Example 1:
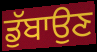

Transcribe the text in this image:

ਡੁੱਬਾਉਣ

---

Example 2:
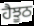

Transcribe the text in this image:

ਹੈਝੂਠ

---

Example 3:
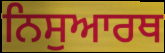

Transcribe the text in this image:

ਨਿਸੁਆਰਥ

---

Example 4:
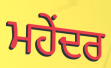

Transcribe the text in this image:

ਮਹੇਂਦਰ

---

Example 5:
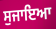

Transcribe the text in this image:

ਸੁਜਾਇਆ